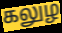
கலுழ